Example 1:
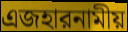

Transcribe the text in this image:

এজহারনামীয়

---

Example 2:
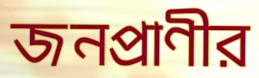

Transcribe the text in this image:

জনপ্রাণীর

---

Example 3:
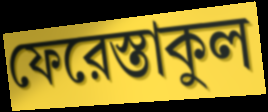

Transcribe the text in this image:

ফেরেস্তাকুল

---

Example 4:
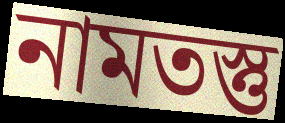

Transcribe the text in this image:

নামতস্তু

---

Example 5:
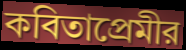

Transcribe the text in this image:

কবিতাপ্রেমীর